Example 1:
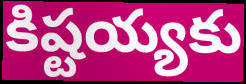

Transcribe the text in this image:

కిష్టయ్యకు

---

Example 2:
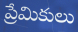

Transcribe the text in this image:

ప్రేమికులు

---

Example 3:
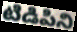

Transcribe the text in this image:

టిడిపిని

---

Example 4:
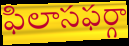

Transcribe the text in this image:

ఫిలాసఫర్గా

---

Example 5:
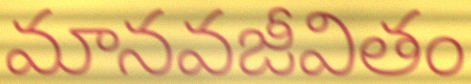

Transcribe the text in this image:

మానవజీవితం